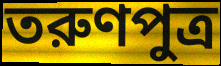
তরুণপুত্র